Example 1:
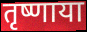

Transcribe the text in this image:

तृष्णाया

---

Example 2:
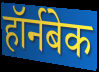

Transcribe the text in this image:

हॉर्नबेक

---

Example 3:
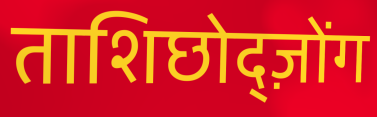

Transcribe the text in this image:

ताशिछोद्ज़ोंग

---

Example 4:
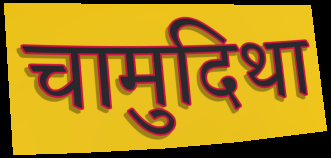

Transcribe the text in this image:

चामुदिथा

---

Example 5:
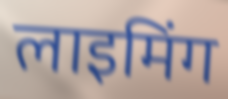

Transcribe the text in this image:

लाइमिंग